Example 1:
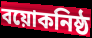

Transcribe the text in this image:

বয়োকনিষ্ঠ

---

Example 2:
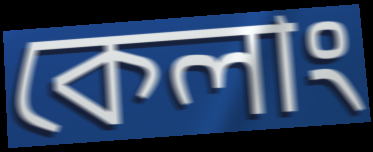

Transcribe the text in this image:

কেলাং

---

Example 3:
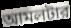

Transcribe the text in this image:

আমলটার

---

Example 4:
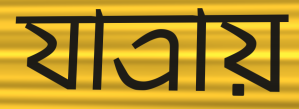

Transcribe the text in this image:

যাত্রায়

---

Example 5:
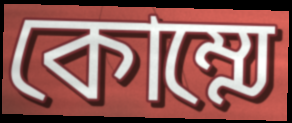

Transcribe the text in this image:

কোম্মে